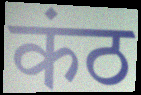
कंठ